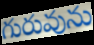
గురువును